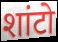
शांटो